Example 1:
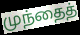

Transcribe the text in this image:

முந்தைத்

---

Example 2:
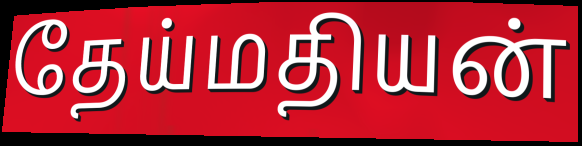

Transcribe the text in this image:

தேய்மதியன்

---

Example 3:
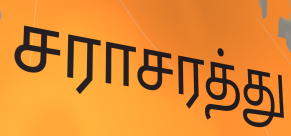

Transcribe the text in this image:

சராசரத்து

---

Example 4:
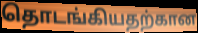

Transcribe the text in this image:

தொடங்கியதற்கான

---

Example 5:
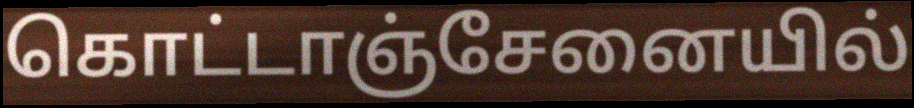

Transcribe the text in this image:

கொட்டாஞ்சேனையில்